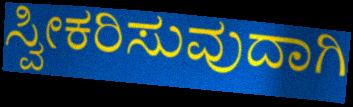
ಸ್ವೀಕರಿಸುವುದಾಗಿ